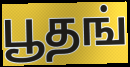
பூதங்